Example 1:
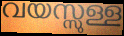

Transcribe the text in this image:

വയസ്സുള്ള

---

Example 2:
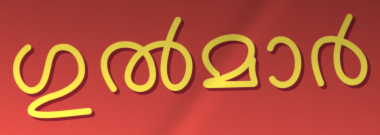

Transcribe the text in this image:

ഗുൽമാർ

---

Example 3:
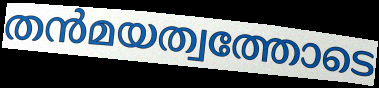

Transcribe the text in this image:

തൻമയത്വത്തോടെ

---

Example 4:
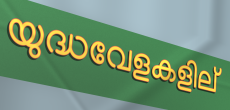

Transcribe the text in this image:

യുദ്ധവേളകളില്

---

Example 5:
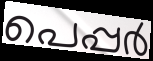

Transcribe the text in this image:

പെപ്പർ